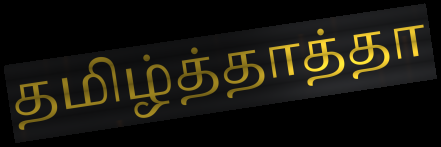
தமிழ்த்தாத்தா